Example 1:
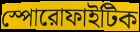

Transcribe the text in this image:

স্পোরোফাইটিক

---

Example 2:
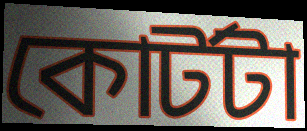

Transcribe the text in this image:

কোর্টটা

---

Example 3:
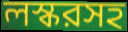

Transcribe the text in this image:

লস্করসহ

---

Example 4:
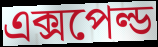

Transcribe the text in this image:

এক্সপেল্ড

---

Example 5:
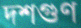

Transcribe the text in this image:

দশগুণ